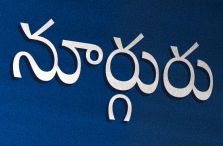
నూర్గురు